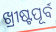
ଖ୍ରୀଷ୍ଟପୂର୍ବ